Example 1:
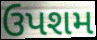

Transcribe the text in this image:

ઉપશમ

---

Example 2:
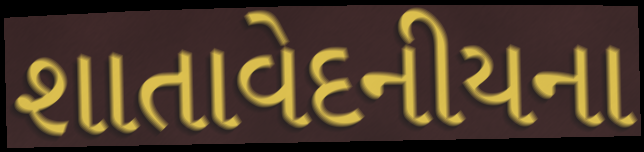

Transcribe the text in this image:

શાતાવેદનીયના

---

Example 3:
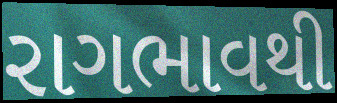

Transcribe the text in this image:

રાગભાવથી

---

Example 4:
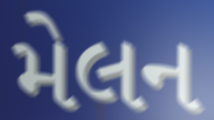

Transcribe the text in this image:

મેલન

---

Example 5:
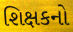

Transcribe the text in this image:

શિક્ષકનો